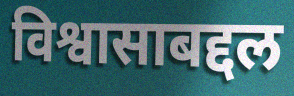
विश्वासाबद्दल